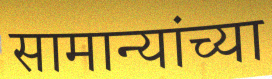
सामान्यांच्या